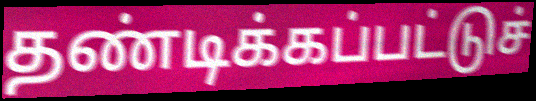
தண்டிக்கப்பட்டுச்